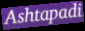
Ashtapadi